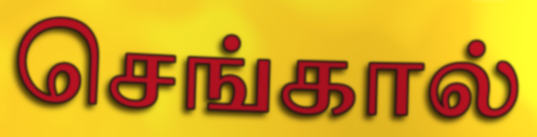
செங்கால்